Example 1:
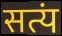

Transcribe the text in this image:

सत्यं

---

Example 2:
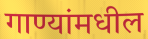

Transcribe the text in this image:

गाण्यांमधील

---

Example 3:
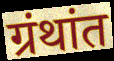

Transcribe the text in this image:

ग्रंथांत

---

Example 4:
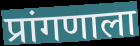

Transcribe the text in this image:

प्रांगणाला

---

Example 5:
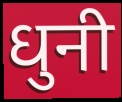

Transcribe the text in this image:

धुनी